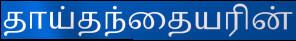
தாய்தந்தையரின்